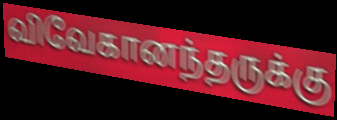
விவேகானந்தருக்கு